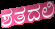
ಶತದಲಿ